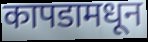
कापडामधून